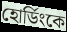
হোর্ডিংকে